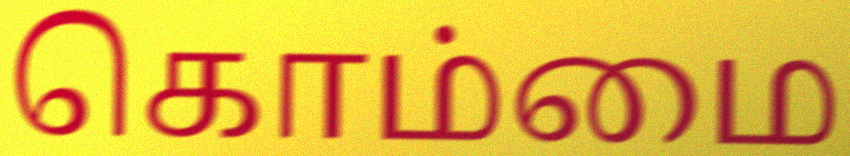
கொம்மை